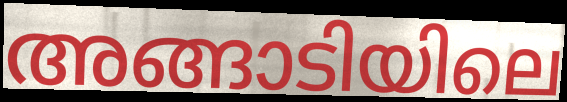
അങ്ങാടിയിലെ